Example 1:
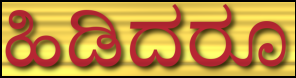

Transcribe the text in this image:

ಹಿಡಿದರೂ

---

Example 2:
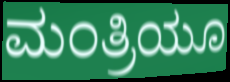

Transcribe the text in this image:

ಮಂತ್ರಿಯೂ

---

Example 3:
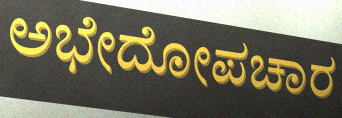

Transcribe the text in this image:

ಅಭೇದೋಪಚಾರ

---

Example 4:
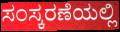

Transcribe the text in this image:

ಸಂಸ್ಕರಣೆಯಲ್ಲಿ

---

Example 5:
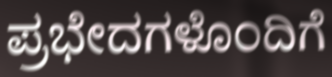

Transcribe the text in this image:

ಪ್ರಭೇದಗಳೊಂದಿಗೆ